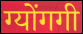
ग्योंगगी